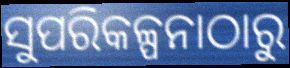
ସୁପରିକଳ୍ପନାଠାରୁ